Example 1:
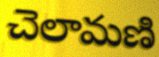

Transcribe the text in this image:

చెలామణి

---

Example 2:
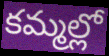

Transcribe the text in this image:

కమ్మల్లో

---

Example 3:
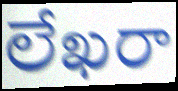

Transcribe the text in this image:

లేఖరా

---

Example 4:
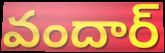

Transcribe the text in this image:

వందార్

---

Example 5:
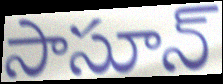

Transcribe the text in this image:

సాసూన్